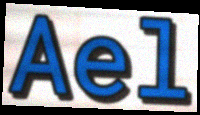
Ael